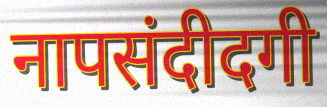
नापसंदीदगी